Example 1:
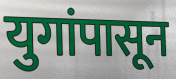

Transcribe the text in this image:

युगांपासून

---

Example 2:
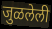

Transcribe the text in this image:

जुळलेली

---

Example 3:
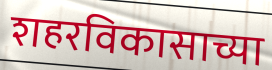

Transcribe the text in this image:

शहरविकासाच्या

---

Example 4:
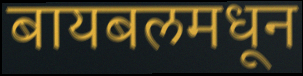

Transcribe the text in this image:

बायबलमधून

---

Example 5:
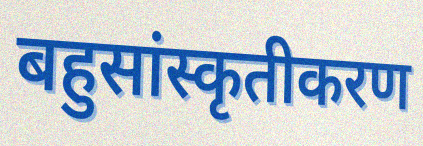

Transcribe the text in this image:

बहुसांस्कृतीकरण